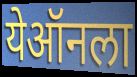
येऑनला